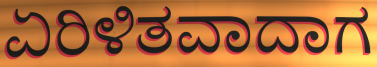
ಏರಿಳಿತವಾದಾಗ